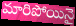
మారిపోయినై